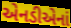
એનડીએનાં